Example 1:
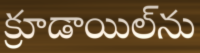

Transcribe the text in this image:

క్రూడాయిల్‌ను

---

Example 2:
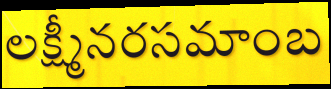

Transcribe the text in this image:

లక్ష్మీనరసమాంబ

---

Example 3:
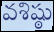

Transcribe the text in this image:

వశిష్ఠు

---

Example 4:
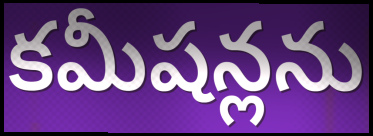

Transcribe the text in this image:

కమీషన్లను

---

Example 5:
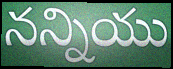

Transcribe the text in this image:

నన్నియు